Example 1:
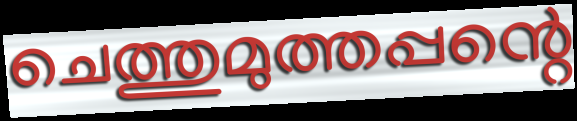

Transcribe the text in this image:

ചെത്തുമുത്തപ്പന്റെ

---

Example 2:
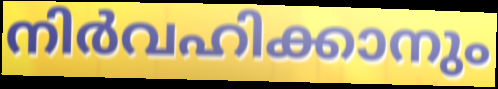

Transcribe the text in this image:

നിർവഹിക്കാനും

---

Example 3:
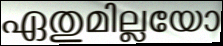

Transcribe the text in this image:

ഏതുമില്ലയോ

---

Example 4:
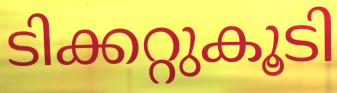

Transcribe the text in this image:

ടിക്കറ്റുകൂടി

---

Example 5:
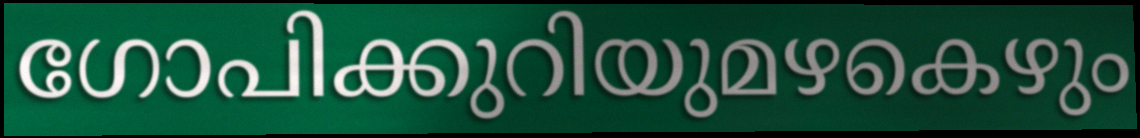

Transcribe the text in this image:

ഗോപിക്കുറിയുമഴകെഴും